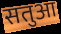
सतुआ